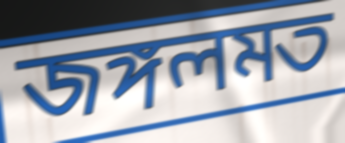
জঙ্গলমত